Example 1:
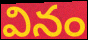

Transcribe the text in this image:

వినం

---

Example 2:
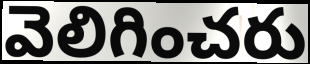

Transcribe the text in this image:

వెలిగించరు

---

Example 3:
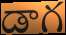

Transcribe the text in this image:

డాగ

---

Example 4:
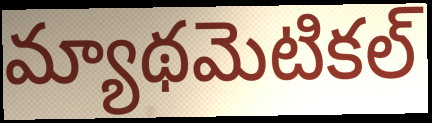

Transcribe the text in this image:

మ్యాథమెటికల్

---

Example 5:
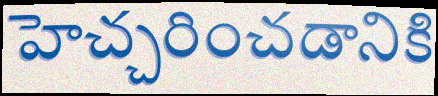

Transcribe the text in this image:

హెచ్చరించడానికి